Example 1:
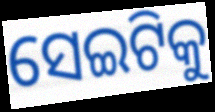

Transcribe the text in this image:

ସେଇଟିକୁ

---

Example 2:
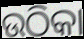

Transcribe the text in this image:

ଉଠିକା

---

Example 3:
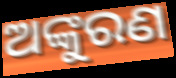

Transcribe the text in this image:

ଅଙ୍କୁରଣ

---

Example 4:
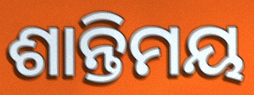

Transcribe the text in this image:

ଶାନ୍ତିମୟ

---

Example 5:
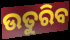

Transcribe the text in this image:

ଉତୁରିବ